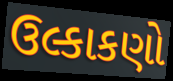
ઉલ્કાકણો